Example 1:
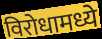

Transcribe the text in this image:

विरोधामध्ये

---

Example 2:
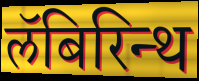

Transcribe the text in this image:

लॅबिरिन्थ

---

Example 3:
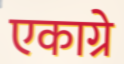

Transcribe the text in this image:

एकाग्रे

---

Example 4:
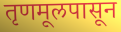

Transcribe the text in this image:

तृणमूलपासून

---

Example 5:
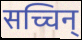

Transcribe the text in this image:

सच्चिन्